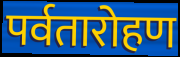
पर्वतारोहण